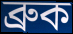
ব্রুক